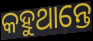
କହୁଥାନ୍ତେ